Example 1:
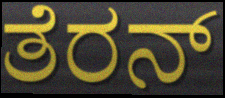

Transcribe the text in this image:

ತೆರನ್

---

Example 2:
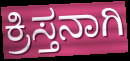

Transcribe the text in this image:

ಕ್ರಿಸ್ತನಾಗಿ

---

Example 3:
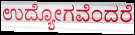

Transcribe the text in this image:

ಉದ್ಯೋಗವೆಂದರೆ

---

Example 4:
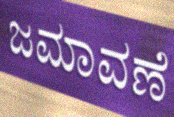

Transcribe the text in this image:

ಜಮಾವಣೆ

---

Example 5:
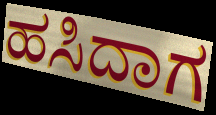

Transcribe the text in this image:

ಹಸಿದಾಗ